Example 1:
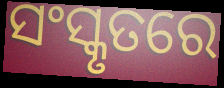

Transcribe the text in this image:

ସଂସ୍କୃତରେ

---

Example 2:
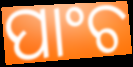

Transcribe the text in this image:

ପାଂଚ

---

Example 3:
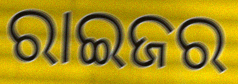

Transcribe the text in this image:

ରାଇଜର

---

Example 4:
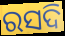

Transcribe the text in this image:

ରସଦି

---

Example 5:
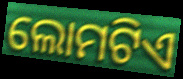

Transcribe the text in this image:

ଲୋମଟିଏ